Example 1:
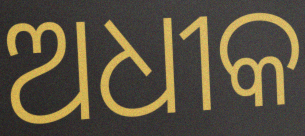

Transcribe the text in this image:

ଅଧୀକ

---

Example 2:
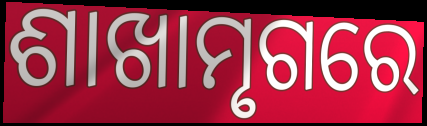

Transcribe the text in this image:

ଶାଖାମୃଗରେ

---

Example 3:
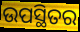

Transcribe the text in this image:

ଉପସ୍ଥିତର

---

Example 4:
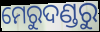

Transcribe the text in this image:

ମେରୁଦଣ୍ଡରୁ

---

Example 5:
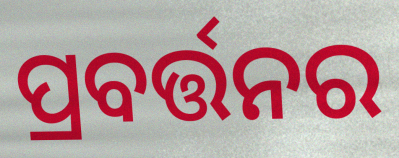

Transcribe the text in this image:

ପ୍ରବର୍ତ୍ତନର